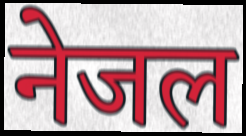
नेजल